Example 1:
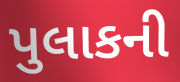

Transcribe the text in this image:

પુલાકની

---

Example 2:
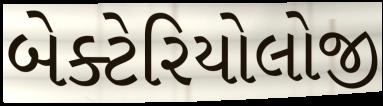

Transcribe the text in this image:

બેક્ટેરિયોલોજી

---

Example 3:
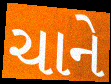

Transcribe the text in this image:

ચાને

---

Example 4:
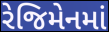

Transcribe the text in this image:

રેજિમેનમાં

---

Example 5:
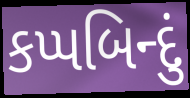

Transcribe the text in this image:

કપ્પબિન્દું